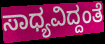
ಸಾಧ್ಯವಿದ್ದಂತೆ